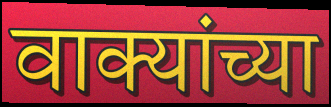
वाक्यांच्या